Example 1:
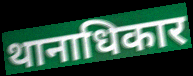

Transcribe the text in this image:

थानाधिकार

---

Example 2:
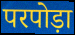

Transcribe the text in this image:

परपोड़ा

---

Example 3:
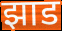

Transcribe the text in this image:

झाड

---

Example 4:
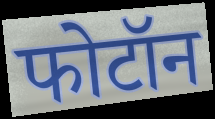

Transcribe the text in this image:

फोटॉन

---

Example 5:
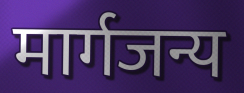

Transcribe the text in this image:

मार्गजन्य